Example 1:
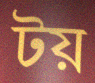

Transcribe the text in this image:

টয়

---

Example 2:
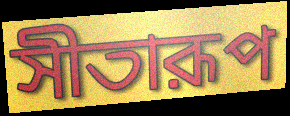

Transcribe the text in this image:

সীতারূপ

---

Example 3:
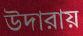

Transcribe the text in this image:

উদারায়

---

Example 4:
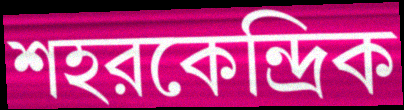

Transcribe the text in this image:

শহরকেন্দ্রিক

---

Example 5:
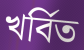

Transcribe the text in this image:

খর্বিত